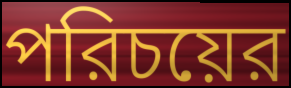
পরিচয়ের